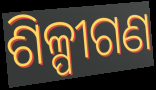
ଶିଳ୍ପୀଗଣ